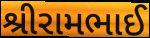
શ્રીરામભાઈ